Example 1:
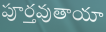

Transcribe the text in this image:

పూర్తవుతాయా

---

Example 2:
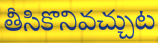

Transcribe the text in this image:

తీసికొనివచ్చుట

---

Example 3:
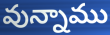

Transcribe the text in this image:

వున్నాము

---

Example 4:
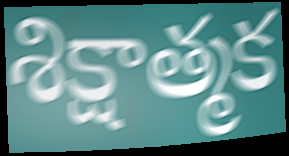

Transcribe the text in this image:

శిక్షాత్మక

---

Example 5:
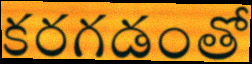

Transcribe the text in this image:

కరగడంతో